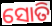
ସୋତି